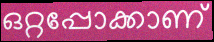
ഒറ്റപ്പോക്കാണ്